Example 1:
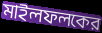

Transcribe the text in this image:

মাইলফলকের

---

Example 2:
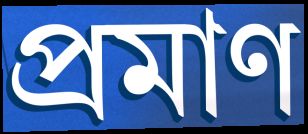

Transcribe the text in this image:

প্রমাণ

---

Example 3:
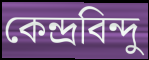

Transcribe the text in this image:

কেন্দ্রবিন্দু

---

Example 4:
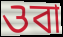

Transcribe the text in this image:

ওবা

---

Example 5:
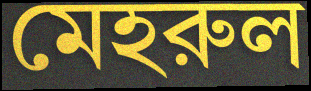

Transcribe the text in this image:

মেহরুল